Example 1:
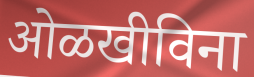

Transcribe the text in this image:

ओळखीविना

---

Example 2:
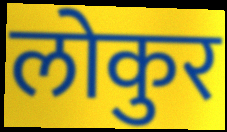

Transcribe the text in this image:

लोकुर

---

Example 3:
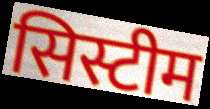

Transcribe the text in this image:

सिस्टीम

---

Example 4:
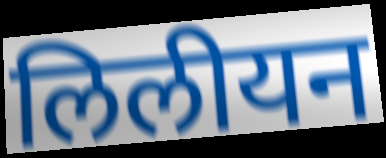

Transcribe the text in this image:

लिलीयन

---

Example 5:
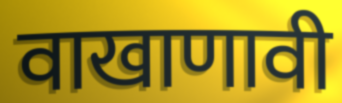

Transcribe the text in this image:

वाखाणावी